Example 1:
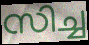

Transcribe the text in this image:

സിച്ച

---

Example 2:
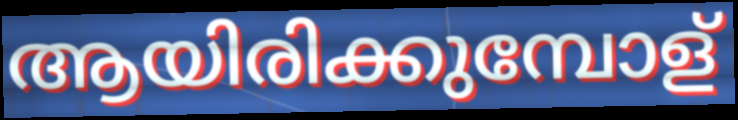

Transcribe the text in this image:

ആയിരിക്കുമ്പോള്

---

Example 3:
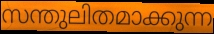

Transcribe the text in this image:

സന്തുലിതമാക്കുന്ന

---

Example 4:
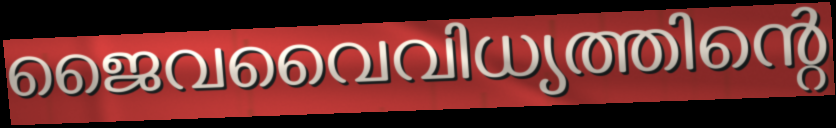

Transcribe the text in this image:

ജൈവവൈവിധ്യത്തിന്റെ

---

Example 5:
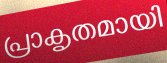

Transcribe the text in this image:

പ്രാകൃതമായി